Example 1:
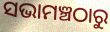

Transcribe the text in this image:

ସଭାମଞ୍ଚଠାରୁ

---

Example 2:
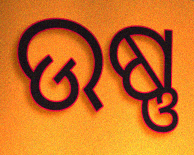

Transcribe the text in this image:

ଉଷ୍ଣ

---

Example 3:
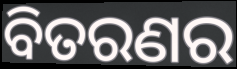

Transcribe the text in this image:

ବିତରଣର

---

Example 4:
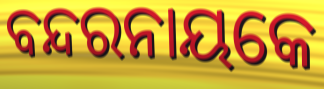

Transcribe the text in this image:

ବନ୍ଦରନାୟକେ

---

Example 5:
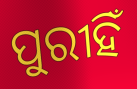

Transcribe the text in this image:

ପୁରୀହିଁ